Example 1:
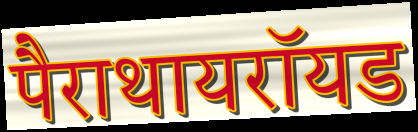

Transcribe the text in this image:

पैराथायरॉयड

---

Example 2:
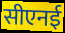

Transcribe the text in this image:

सीएनई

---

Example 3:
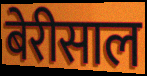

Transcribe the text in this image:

बेरीसाल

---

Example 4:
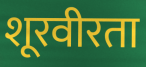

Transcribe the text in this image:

शूरवीरता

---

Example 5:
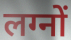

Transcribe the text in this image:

लग्नों